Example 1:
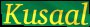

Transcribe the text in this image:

Kusaal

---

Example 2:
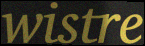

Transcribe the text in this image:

wistre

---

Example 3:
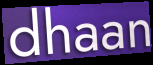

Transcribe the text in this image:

dhaan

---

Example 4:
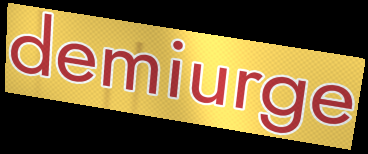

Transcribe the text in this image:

demiurge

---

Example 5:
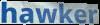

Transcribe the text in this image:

hawker